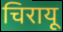
चिरायू